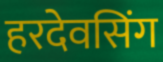
हरदेवसिंग